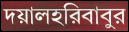
দয়ালহরিবাবুর